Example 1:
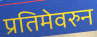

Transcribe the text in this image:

प्रतिमेवरुन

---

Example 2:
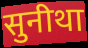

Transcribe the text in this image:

सुनीथा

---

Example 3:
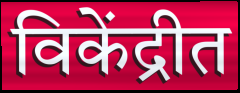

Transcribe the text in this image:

विकेंद्रीत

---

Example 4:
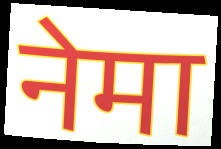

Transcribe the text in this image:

नेमा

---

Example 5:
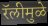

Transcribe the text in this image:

रॅलीमुळे